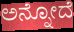
ಅನ್ನೋದೆ